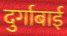
दुर्गाबाई